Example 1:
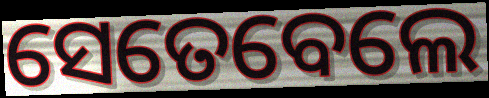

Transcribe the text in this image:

ସେତେବେଲେ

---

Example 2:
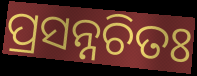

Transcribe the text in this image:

ପ୍ରସନ୍ନଚିତଃ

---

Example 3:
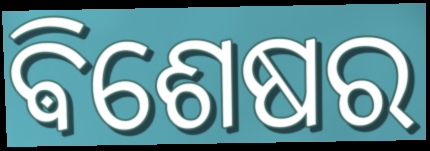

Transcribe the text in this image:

ଵିଶେଷର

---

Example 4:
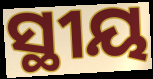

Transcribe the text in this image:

ସ୍ଥୀୟ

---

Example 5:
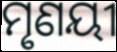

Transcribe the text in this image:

ମୃଣୟୀ